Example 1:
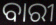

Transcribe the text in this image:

ବାରୀ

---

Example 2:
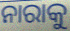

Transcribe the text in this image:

ନାରାକୁ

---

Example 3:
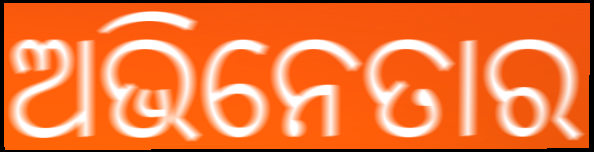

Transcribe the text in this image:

ଅଭିନେତାର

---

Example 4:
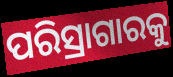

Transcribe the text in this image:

ପରିସ୍ରାଗାରକୁ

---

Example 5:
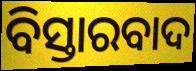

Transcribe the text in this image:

ବିସ୍ତାରବାଦ